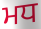
ਮਧ